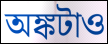
অঙ্কটাও